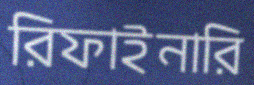
রিফাইনারি